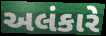
અલંકારે